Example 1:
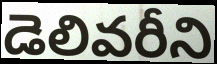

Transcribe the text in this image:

డెలివరీని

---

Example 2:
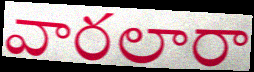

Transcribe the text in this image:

వారలారా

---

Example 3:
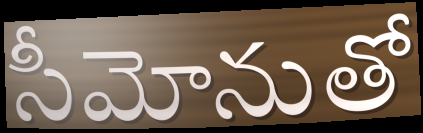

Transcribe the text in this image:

సీమోనుతో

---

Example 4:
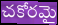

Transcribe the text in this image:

చకోరమై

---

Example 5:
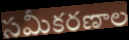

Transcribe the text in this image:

సమీకరణాల